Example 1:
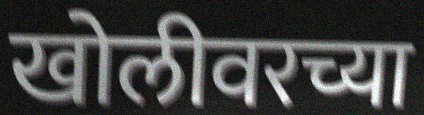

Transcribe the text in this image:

खोलीवरच्या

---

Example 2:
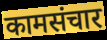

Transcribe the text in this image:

कामसंचार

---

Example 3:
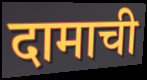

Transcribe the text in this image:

दामाची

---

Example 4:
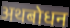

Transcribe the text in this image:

अथबोधन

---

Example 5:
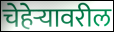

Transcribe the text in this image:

चेहेऱ्यावरील